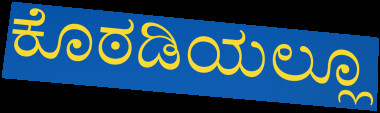
ಕೊಠಡಿಯಲ್ಲೂ